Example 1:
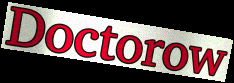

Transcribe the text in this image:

Doctorow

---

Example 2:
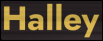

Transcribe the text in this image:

Halley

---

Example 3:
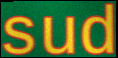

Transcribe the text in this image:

sud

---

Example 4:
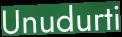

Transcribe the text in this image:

Unudurti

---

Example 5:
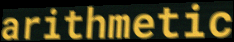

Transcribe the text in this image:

arithmetic